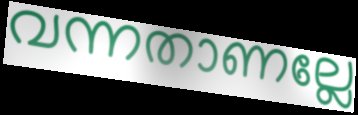
വന്നതാണല്ലേ